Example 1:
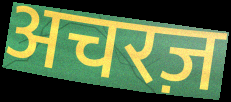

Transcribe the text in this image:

अचरज़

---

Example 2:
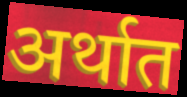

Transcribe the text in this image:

अर्थात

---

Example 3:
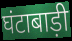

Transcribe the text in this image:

घंटाबाड़ी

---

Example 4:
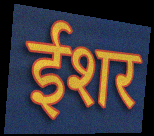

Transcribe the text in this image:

ईशर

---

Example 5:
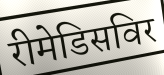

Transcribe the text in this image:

रीमेडिसविर